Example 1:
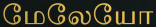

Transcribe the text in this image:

மேலேயோ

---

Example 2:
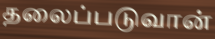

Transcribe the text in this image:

தலைப்படுவான்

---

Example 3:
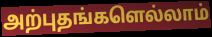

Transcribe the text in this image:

அற்புதங்களெல்லாம்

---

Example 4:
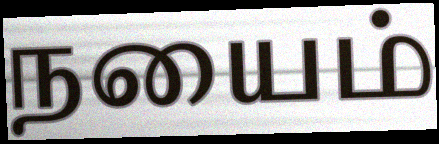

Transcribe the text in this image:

நயைம்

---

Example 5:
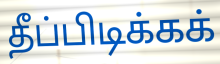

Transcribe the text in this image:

தீப்பிடிக்கக்